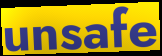
unsafe